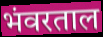
भंवरताल